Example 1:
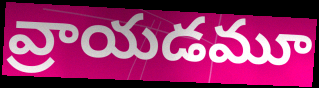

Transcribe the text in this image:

వ్రాయడమూ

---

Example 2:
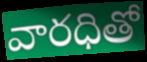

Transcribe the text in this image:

వారధితో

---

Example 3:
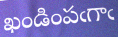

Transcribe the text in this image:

ఖండింపఁగాఁ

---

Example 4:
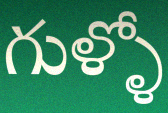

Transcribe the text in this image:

గుళ్ళో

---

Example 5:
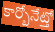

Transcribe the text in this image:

కార్బోనేట్తో